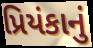
પ્રિયંકાનું